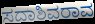
ಸದಾಶಿವರಾವ